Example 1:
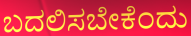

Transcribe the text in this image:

ಬದಲಿಸಬೇಕೆಂದು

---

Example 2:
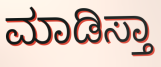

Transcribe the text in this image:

ಮಾಡಿಸ್ತಾ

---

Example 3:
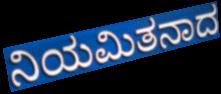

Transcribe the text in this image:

ನಿಯಮಿತನಾದ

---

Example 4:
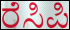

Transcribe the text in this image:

ರೆಸಿಪಿ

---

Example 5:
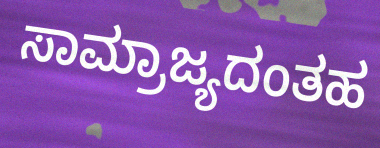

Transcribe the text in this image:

ಸಾಮ್ರಾಜ್ಯದಂತಹ